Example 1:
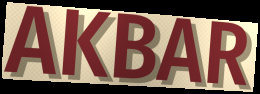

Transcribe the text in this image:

AKBAR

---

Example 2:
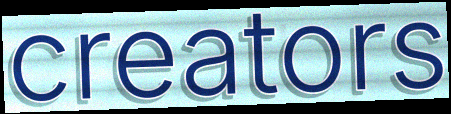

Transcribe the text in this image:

creators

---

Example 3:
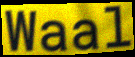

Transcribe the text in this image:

Waal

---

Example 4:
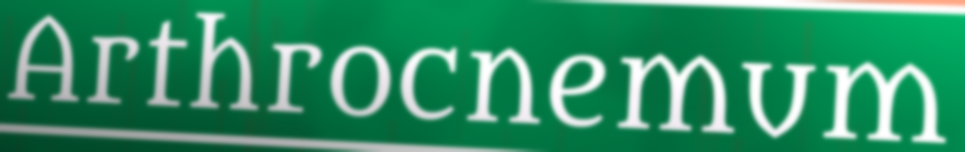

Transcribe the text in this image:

Arthrocnemum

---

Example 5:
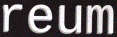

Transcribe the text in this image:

reum